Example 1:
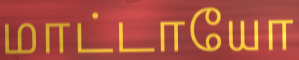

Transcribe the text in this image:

மாட்டாயோ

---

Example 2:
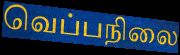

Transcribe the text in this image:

வெப்பநிலை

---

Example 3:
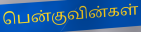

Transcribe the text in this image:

பென்குவின்கள்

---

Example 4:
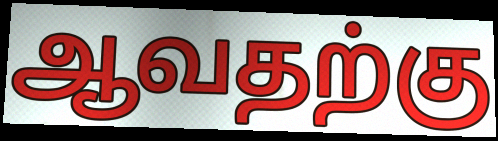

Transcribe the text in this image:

ஆவதற்கு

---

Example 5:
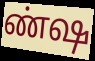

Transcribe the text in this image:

ண்ஷ